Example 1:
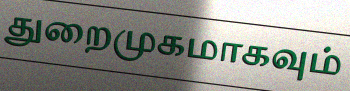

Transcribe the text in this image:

துறைமுகமாகவும்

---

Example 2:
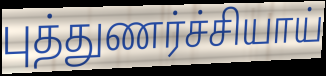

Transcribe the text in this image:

புத்துணர்ச்சியாய்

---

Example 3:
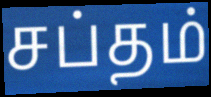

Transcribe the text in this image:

சப்தம்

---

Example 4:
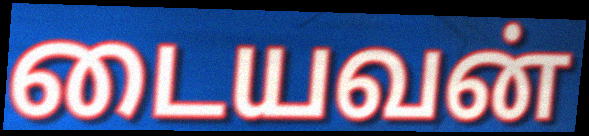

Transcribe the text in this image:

டையவன்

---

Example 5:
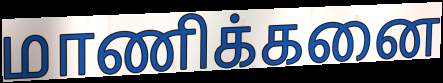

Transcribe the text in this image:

மாணிக்கனை